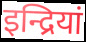
इन्द्रियां